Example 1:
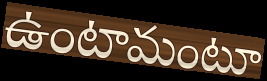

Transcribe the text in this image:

ఉంటామంటూ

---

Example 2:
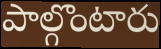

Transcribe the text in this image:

పాల్గొంటారు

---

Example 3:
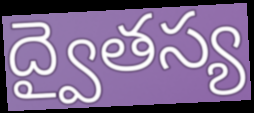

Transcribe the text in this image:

ద్వైతస్య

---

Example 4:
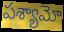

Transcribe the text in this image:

పశ్యామో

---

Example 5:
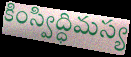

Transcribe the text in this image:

కింస్విద్ధిమస్య